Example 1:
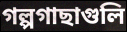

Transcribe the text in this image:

গল্পগাছাগুলি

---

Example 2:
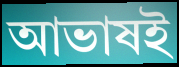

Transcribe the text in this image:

আভাষই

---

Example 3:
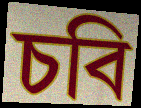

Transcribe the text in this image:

চবি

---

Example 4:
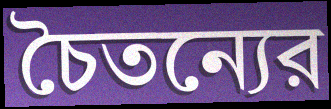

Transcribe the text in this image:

চৈতন্যের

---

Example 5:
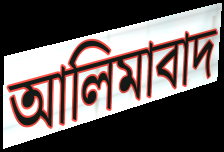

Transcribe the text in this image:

আলিমাবাদ